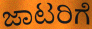
ಜಾಟರಿಗೆ